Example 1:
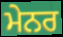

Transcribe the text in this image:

ਮੇਨਰ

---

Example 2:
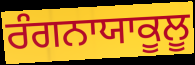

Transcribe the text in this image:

ਰੰਗਨਾਯਾਕੂਲੂ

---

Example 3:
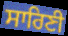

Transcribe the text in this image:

ਸਾਰਿਣੀ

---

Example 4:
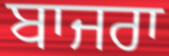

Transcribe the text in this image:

ਬਾਜਰਾ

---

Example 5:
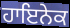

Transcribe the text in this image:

ਹਾਇਨੇਕ